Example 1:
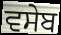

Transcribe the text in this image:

ਵਸੇਬ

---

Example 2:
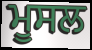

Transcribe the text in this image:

ਮੂਸਲ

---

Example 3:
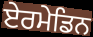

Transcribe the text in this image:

ਏਰਮੇਡਿਨ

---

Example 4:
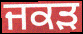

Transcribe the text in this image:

ਜਕਡ਼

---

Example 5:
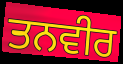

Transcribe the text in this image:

ਤਨਵੀਰ